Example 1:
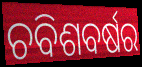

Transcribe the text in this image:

ଚବିଶବର୍ଷର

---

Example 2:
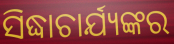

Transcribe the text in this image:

ସିଦ୍ଧାଚାର୍ଯ୍ୟଙ୍କର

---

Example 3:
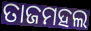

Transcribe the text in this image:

ତାଜମହଲ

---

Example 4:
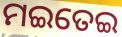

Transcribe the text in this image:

ମଇତେଇ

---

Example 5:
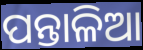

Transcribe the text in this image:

ପନ୍ତାଳିଆ